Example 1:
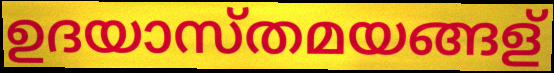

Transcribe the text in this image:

ഉദയാസ്തമയങ്ങള്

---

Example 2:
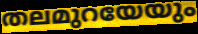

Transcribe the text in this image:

തലമുറയേയും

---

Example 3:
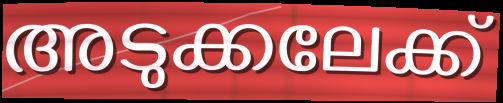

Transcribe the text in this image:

അടുക്കലേക്ക്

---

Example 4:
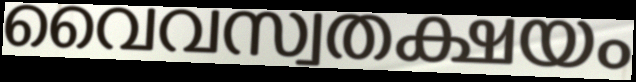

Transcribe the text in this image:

വൈവസ്വതക്ഷയം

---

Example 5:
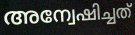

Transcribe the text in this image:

അന്വേഷിച്ചത്